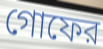
গোফের